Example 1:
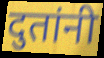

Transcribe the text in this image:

दुतांनी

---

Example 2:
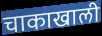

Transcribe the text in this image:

चाकाखाली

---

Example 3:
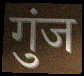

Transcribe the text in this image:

गुंज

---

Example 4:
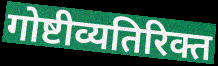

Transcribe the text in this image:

गोष्टीव्यतिरिक्त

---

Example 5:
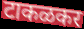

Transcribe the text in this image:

टाकळकर